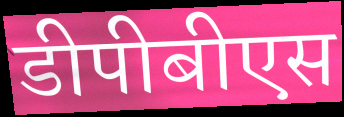
डीपीबीएस